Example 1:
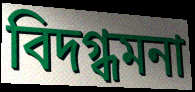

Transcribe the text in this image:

বিদগ্ধমনা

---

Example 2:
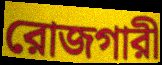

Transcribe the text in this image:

রোজগারী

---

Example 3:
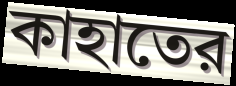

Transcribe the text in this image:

কাহাতের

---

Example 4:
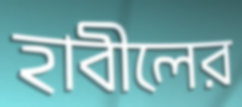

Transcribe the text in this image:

হাবীলের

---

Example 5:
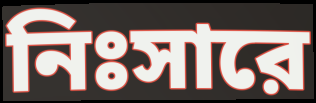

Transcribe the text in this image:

নিঃসারে